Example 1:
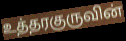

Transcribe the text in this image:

உத்தரகுருவின்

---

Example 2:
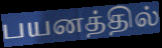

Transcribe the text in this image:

பயனத்தில்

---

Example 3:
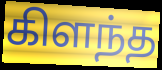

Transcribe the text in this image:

கிளந்த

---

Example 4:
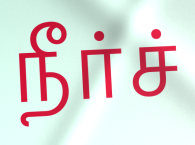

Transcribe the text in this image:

நீர்ச்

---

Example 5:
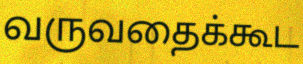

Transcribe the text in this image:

வருவதைக்கூட